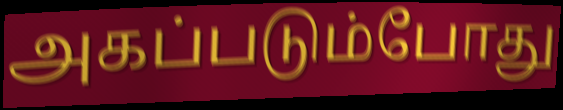
அகப்படும்போது